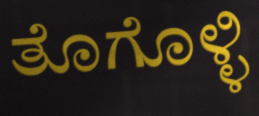
ತೊಗೊಳ್ಳಿ